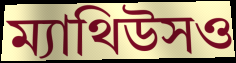
ম্যাথিউসও